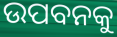
ଉପବନକୁ